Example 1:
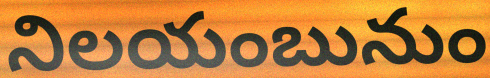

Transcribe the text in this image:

నిలయంబునుం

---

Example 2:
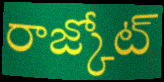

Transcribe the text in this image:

రాజ్కోట్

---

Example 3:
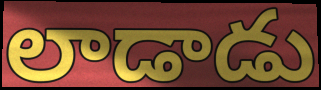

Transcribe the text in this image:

లాడాడు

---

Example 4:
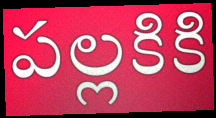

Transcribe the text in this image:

పల్లకికి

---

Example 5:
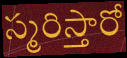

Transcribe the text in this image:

స్మరిస్తారో